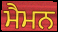
ਮੈਮਨ